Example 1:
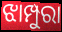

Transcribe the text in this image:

ଝାମ୍ପୁରା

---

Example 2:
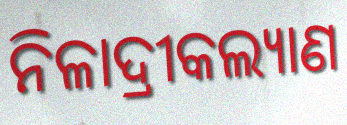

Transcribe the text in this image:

ନିଳାଦ୍ରୀକଲ୍ୟାଣ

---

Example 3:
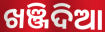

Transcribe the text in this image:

ଖଞ୍ଜିଦିଆ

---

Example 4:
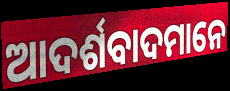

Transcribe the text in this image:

ଆଦର୍ଶବାଦମାନେ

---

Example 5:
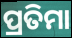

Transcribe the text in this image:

ପ୍ରତିମା